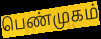
பெண்முகம்